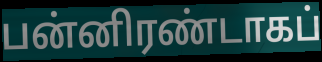
பன்னிரண்டாகப்